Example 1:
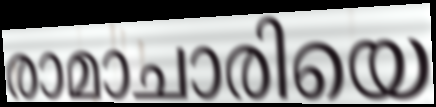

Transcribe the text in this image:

രാമാചാരിയെ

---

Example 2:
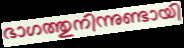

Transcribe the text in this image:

ഭാഗത്തുനിന്നുണ്ടായി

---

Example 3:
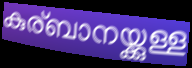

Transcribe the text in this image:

കുര്ബാനയ്ക്കുള്ള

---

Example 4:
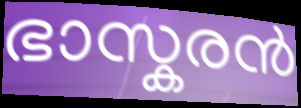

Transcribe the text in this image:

ഭാസ്കരൻ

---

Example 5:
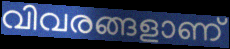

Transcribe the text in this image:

വിവരങ്ങളാണ്